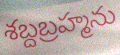
శబ్దబ్రహ్మను